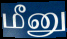
மீனு